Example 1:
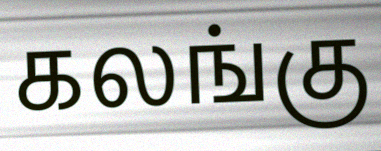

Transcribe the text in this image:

கலங்கு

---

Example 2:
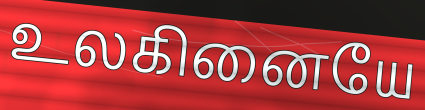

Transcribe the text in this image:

உலகினையே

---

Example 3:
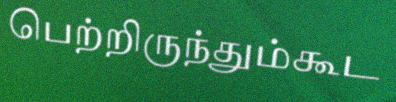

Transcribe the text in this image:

பெற்றிருந்தும்கூட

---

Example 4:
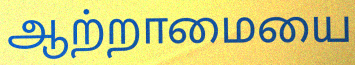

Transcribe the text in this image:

ஆற்றாமையை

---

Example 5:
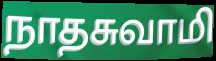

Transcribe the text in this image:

நாதசுவாமி